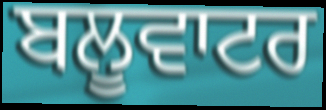
ਬਲੂਵਾਟਰ